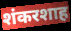
शंकरशाह